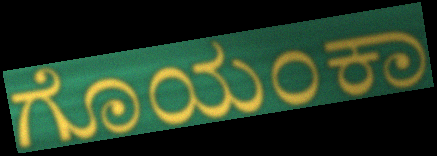
ಗೊಯಂಕಾ